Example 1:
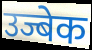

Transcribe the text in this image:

उज्बेक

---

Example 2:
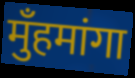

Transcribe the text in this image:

मुँहमांगा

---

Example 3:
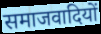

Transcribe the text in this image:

समाजवादियों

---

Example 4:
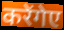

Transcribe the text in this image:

करेंगेए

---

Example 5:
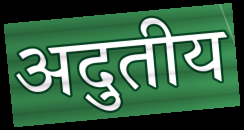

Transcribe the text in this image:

अदुतीय